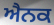
ਐਨਕ